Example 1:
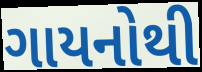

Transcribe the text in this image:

ગાયનોથી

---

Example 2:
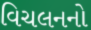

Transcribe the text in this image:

વિચલનનો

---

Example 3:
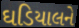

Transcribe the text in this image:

ઘડિયાલને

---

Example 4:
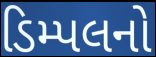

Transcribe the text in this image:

ડિમ્પલનો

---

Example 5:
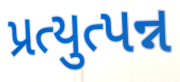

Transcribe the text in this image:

પ્રત્યુત્પન્ન